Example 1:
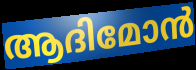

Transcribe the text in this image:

ആദിമോൻ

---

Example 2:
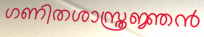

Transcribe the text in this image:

ഗണിതശാസ്ത്രജ്ഞൻ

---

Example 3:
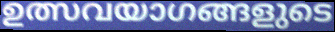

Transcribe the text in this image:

ഉത്സവയാഗങ്ങളുടെ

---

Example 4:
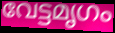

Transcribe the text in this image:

വേട്ടമൃഗം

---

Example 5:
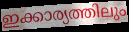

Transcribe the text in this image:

ഇക്കാര്യത്തിലും